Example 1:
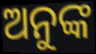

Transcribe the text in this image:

ଅନୁଙ୍କ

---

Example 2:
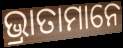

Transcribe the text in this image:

ଭ୍ରାତାମାନେ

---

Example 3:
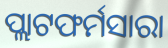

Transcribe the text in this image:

ପ୍ଲାଟଫର୍ମସାରା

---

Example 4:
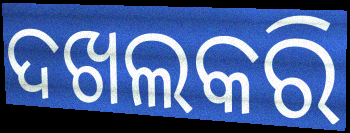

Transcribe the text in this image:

ଦଖଲକରି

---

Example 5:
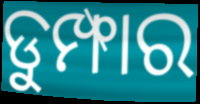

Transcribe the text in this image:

ଡୁମ୍ଫାର